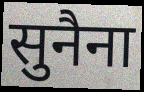
सुनैना